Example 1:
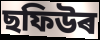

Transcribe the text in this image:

ছফিউৰ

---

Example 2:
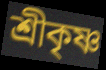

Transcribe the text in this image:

শ্ৰীকৃষ্ণ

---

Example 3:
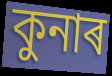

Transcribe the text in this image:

কুনাৰ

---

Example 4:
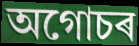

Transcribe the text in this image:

অগোচৰ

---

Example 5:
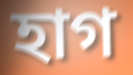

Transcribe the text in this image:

হাগ